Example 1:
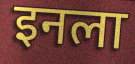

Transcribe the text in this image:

इनला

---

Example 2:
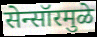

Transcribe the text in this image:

सेन्सॉरमुळे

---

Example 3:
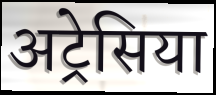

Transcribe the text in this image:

अट्रेसिया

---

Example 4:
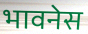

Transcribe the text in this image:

भावनेस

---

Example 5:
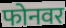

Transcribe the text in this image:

फोनवर